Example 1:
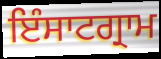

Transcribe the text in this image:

ਇੰਸਾਟਗ੍ਰਾਮ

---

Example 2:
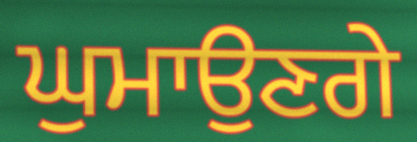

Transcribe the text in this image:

ਘੁਮਾਉਣਗੇ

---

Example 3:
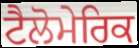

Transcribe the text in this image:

ਟੈਲੋਮੇਰਿਕ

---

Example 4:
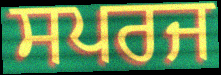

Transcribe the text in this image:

ਸਪਰਜ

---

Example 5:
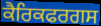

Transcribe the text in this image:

ਕੈਰਿਕਫਰਗਸ